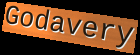
Godavery